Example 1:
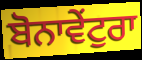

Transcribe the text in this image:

ਬੋਨਾਵੇਂਟੁਰਾ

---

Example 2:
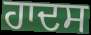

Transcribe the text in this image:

ਹਾਦਸ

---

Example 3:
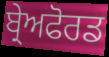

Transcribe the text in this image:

ਬ੍ਰੇਅਫੋਰਡ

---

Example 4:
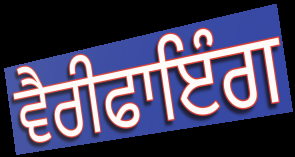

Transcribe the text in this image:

ਵੈਰੀਫਾਇੰਗ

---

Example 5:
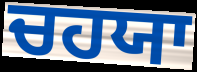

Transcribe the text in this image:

ਚਹਯਾ